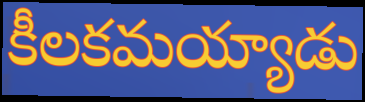
కీలకమయ్యాడు